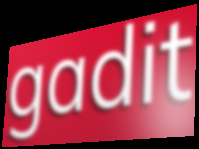
gadit